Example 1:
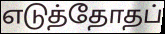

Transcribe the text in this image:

எடுத்தோதப்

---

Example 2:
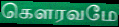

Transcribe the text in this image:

கௌரவமே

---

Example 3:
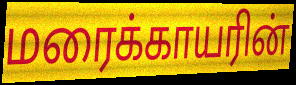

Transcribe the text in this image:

மரைக்காயரின்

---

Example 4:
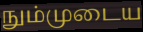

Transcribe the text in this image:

நும்முடைய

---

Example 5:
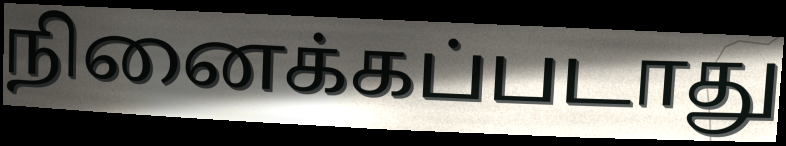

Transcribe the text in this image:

நினைக்கப்படாது